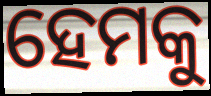
ହେମକୁ